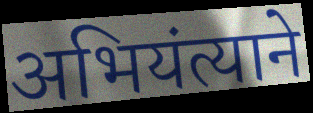
अभियंत्याने